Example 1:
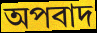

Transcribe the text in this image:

অপবাদ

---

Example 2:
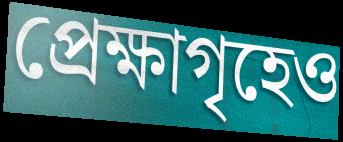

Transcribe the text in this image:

প্রেক্ষাগৃহেও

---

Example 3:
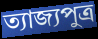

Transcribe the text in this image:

ত্যাজ্যপুত্র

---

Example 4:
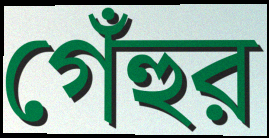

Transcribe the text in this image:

গেঁহুর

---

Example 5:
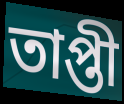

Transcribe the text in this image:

তাপ্তী